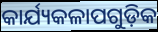
କାର୍ଯ୍ୟକଳାପଗୁଡ଼ିକ